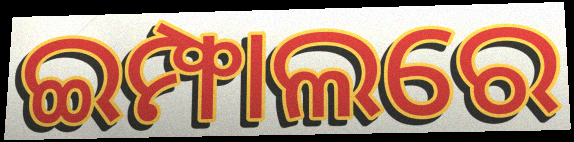
ଇମ୍ଫାଲରେ